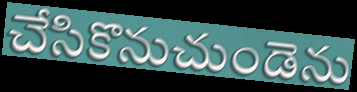
చేసికొనుచుండెను